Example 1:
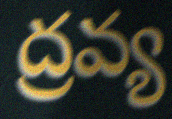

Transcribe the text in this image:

ద్రవ్య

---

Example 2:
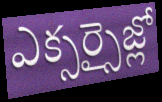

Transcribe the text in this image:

ఎక్సర్సైజ్లో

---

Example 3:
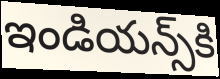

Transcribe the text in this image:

ఇండియన్స్‌కి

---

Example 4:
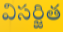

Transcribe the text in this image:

విసర్జిత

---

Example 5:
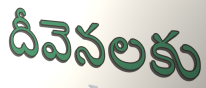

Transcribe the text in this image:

దీవెనలకు